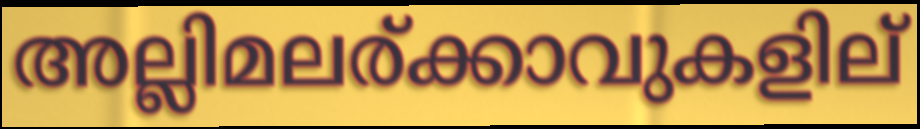
അല്ലിമലര്ക്കാവുകളില്